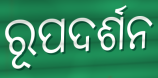
ରୂପଦର୍ଶନ